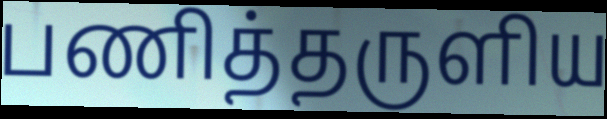
பணித்தருளிய